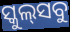
ସ୍କୁଲ୍‍ସବୁ